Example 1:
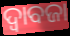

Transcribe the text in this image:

ଦ୍ୱାବଜା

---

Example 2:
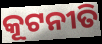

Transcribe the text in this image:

କୂଟନୀତି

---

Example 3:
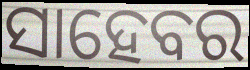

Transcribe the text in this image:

ସାହେବର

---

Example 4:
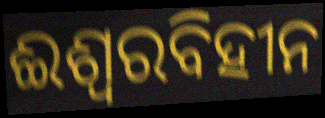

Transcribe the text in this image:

ଈଶ୍ୱରବିହୀନ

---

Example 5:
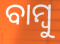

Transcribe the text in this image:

ବାମ୍ବୁ